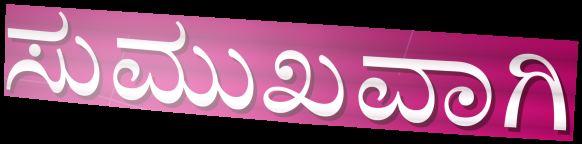
ಸುಮುಖವಾಗಿ